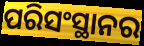
ପରିସଂସ୍ଥାନର